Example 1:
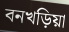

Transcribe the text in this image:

বনখড়িয়া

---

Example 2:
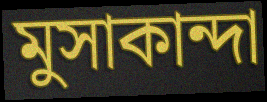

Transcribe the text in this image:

মুসাকান্দা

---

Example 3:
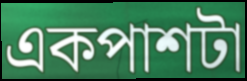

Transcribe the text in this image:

একপাশটা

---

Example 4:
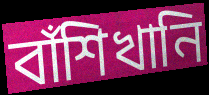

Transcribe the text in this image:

বাঁশিখানি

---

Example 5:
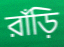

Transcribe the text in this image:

রাঁড়ি